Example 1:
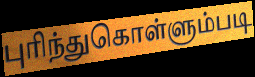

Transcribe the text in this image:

புரிந்துகொள்ளும்படி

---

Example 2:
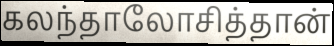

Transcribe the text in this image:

கலந்தாலோசித்தான்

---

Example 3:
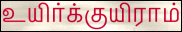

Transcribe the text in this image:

உயிர்க்குயிராம்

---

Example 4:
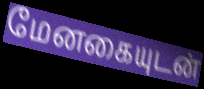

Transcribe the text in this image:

மேனகையுடன்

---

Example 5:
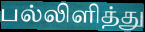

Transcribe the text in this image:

பல்லிளித்து